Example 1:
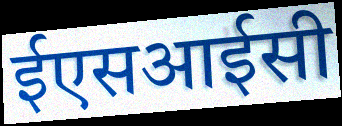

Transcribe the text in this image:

ईएसआईसी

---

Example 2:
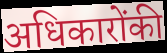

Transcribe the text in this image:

अधिकारोंकी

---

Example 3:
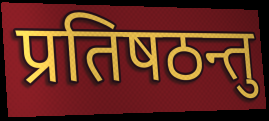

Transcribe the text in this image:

प्रतिषठन्तु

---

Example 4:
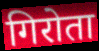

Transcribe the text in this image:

गिरोता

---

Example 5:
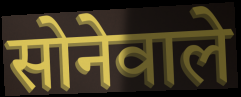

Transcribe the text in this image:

सोनेवाले